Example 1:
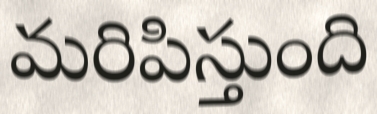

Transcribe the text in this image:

మరిపిస్తుంది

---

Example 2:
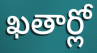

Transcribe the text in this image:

ఖతార్లో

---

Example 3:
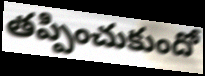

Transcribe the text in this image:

తప్పించుకుందో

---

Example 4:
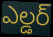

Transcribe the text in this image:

ఎల్డర్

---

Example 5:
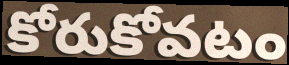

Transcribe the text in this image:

కోరుకోవటం